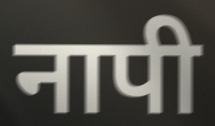
नापी